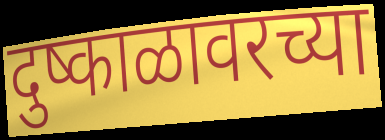
दुष्काळावरच्या